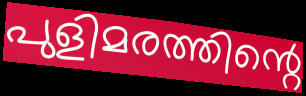
പുളിമരത്തിന്റെ